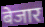
बेजार